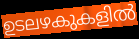
ഉടലഴകുകളിൽ